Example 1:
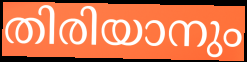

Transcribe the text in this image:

തിരിയാനും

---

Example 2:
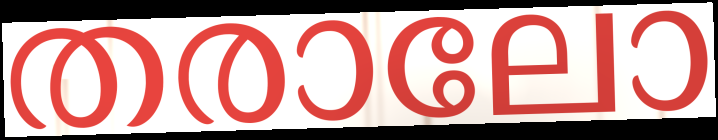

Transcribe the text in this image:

തരാലോ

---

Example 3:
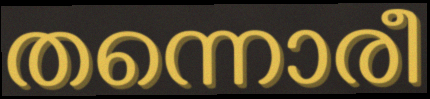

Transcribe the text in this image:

തന്നൊരീ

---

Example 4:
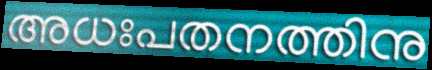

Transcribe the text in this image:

അധഃപതനത്തിനു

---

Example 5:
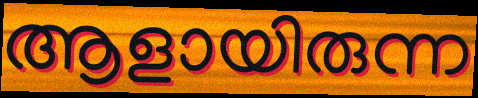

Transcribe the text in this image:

ആളായിരുന്ന